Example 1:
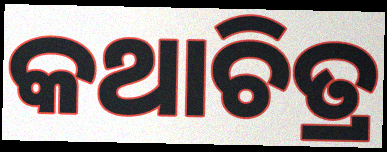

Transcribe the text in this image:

କଥାଚିତ୍ର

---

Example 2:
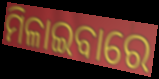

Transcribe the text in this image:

ମିଳାଇବାରେ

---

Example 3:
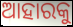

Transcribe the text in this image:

ଆହାରକୁ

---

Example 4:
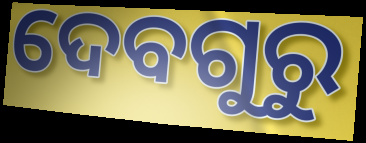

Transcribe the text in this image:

ଦେବଗୁରୁ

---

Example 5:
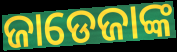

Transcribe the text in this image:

ଜାଡେଜାଙ୍କ